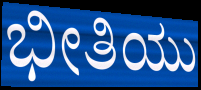
ಭೀತಿಯು